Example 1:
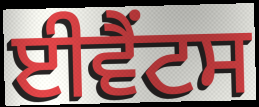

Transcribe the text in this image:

ਈਵੈਂਟਸ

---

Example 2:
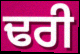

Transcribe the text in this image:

ਢਰੀ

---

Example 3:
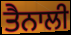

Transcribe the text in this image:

ਤੈਨਾਲੀ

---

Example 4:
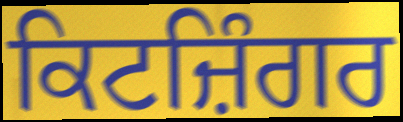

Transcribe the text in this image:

ਕਿਟਜ਼ਿੰਗਰ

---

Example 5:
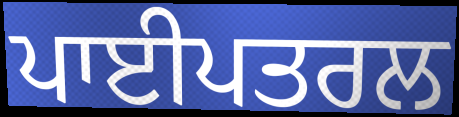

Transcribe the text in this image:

ਪਾਈਪਤਰਲ